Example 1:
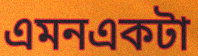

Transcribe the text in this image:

এমনএকটা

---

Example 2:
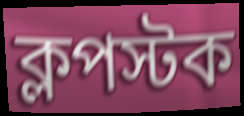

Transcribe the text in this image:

ক্লপস্টক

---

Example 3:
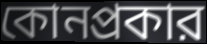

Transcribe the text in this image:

কোনপ্রকার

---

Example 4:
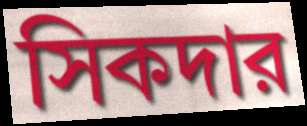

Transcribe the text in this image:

সিকদার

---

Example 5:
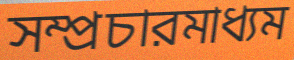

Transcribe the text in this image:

সম্প্রচারমাধ্যম